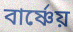
বার্ষ্ণেয়